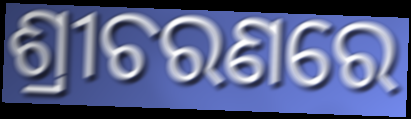
ଶ୍ରୀଚରଣରେ